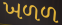
ખળળ